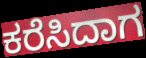
ಕರೆಸಿದಾಗ